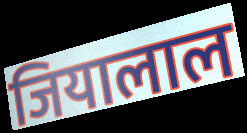
जियालाल